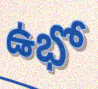
ఉభో